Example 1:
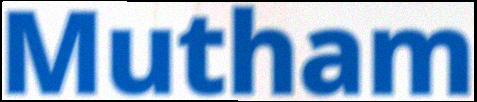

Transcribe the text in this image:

Mutham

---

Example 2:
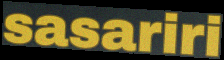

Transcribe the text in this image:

sasariri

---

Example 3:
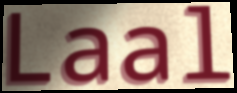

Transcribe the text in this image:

Laal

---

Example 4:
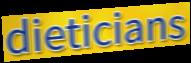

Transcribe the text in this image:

dieticians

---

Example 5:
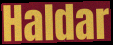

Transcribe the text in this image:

Haldar